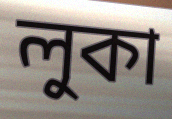
লুকা